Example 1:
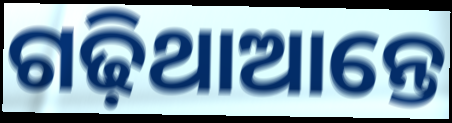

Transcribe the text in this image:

ଗଢ଼ିଥାଆନ୍ତେ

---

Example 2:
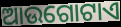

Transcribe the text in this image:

ଆଉଗୋଟାଏ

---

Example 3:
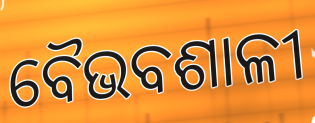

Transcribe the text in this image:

ବୈଭବଶାଳୀ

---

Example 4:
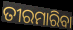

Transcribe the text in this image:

ତୀରମାରିବା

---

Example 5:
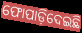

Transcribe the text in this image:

ଫୋପାଡ଼ିଦେଇଛି